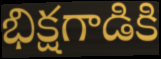
భిక్షగాడికి